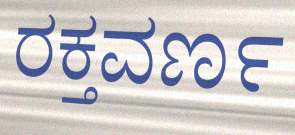
ರಕ್ತವರ್ಣ